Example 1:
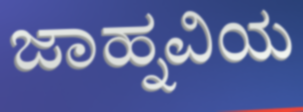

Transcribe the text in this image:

ಜಾಹ್ನವಿಯ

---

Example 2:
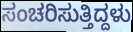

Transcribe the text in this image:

ಸಂಚರಿಸುತ್ತಿದ್ದಳು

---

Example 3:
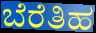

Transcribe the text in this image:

ಬೆರೆತಿಹ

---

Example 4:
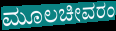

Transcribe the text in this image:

ಮೂಲಚೀವರಂ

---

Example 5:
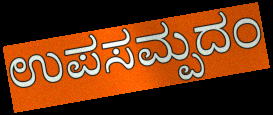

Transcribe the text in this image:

ಉಪಸಮ್ಪದಂ